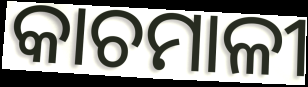
କାଚମାଳୀ